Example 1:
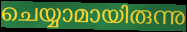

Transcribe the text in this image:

ചെയ്യാമായിരുന്നു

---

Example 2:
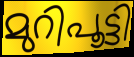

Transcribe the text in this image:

മുറിപൂട്ടി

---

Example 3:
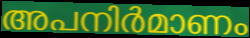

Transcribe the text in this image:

അപനിർമാണം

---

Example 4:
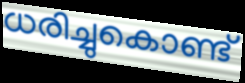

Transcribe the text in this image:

ധരിച്ചുകൊണ്ട്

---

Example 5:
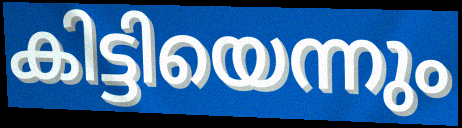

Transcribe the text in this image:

കിട്ടിയെന്നും